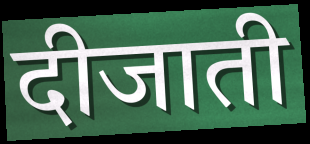
दीजाती